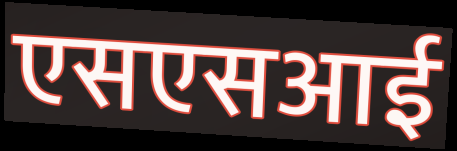
एसएसआई